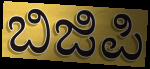
ಬಿಜಿಪಿ